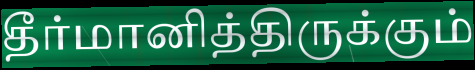
தீர்மானித்திருக்கும்